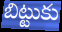
బిట్టుకు